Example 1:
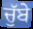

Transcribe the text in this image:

ਚੁੱਬੇ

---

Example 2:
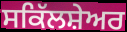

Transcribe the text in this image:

ਸਕਿੱਲਸ਼ੇਅਰ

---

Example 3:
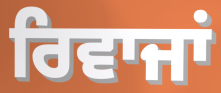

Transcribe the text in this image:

ਰਿਵਾਜਾਂ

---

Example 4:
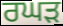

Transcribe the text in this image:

ਰਘੜ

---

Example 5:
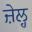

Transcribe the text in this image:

ਜ਼ੇਲ੍ਹ